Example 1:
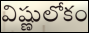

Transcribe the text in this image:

విష్ణులోకం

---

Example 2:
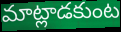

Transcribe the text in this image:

మాట్లాడకుంట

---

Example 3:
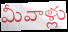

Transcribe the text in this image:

మీవాళ్లు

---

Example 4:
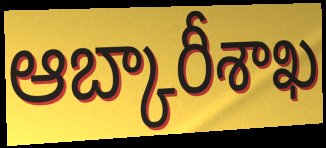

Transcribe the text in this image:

ఆబ్కారీశాఖ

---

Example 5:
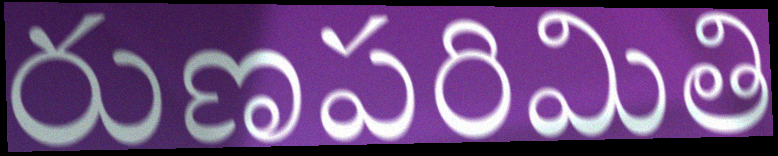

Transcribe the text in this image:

రుణపరిమితి